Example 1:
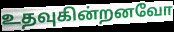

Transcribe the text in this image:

உதவுகின்றனவோ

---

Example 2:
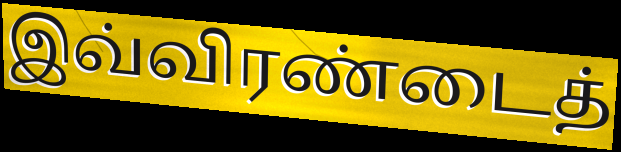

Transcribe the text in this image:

இவ்விரண்டைத்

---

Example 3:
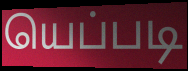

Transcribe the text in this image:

யெப்படி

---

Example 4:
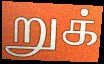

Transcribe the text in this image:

றுக்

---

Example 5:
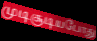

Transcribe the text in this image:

முடிசூடியபோது